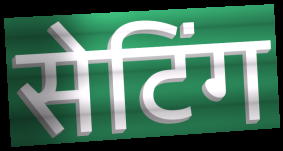
सेटिंग